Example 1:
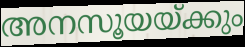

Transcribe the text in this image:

അനസൂയയ്ക്കും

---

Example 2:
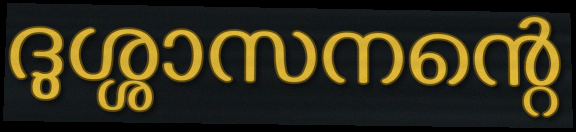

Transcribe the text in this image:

ദുശ്ശാസനന്റെ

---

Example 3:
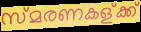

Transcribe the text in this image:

സ്മരണകള്ക്ക്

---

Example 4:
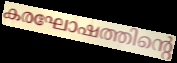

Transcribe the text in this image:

കരഘോഷത്തിന്റെ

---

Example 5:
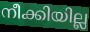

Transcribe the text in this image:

നീക്കിയില്ല